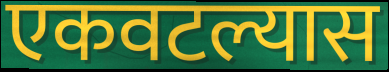
एकवटल्यास